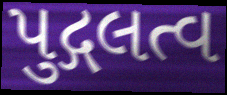
પુદ્ગલત્વ